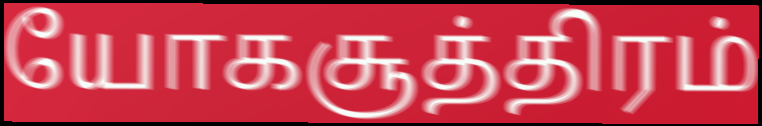
யோகசூத்திரம்